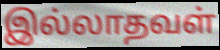
இல்லாதவள்